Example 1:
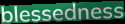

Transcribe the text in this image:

blessedness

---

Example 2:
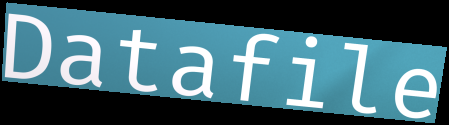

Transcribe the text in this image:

Datafile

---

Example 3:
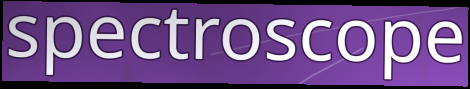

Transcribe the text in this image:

spectroscope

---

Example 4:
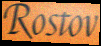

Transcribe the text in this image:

Rostov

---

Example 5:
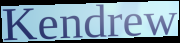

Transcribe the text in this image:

Kendrew